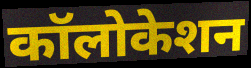
कॉलोकेशन